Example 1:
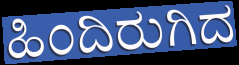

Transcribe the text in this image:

ಹಿಂದಿರುಗಿದ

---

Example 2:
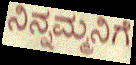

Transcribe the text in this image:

ನಿನ್ನಮ್ಮನಿಗೆ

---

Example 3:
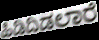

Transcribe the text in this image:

ಹಿಡಿದಿಡಲಾರೆ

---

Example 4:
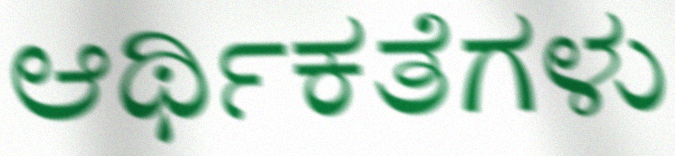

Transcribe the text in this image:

ಆರ್ಥಿಕತೆಗಳು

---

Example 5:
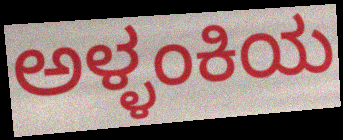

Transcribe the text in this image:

ಅಳ್ಳಂಕಿಯ